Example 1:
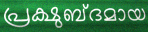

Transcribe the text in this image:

പ്രക്ഷുബ്ദമായ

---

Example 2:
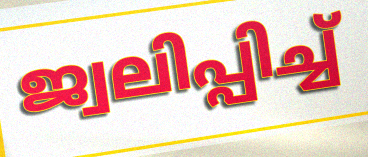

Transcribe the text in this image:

ജ്വലിപ്പിച്ച്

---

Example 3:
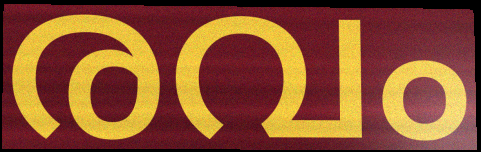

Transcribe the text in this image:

രവം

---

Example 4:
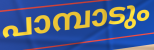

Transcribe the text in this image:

പാമ്പാടും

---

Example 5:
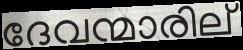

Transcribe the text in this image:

ദേവന്മാരില്